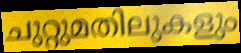
ചുറ്റുമതിലുകളും